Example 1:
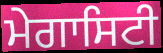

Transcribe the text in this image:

ਮੇਗਾਸਿਟੀ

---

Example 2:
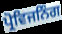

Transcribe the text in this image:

ਪ੍ਰੋਵਿਜਨਿੰਗ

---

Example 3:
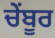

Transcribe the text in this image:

ਚੇਂਬੂਰ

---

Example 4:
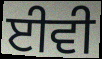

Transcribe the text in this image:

ਈਵੀ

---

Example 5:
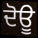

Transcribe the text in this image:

ਦੋਊ